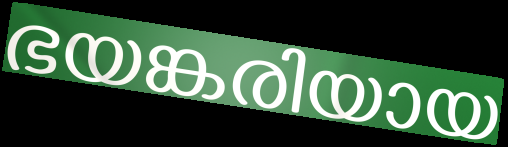
ഭയങ്കരിയായ